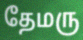
தேமரு